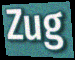
Zug